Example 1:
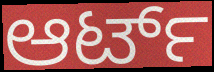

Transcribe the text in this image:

ಆರ್ಟ್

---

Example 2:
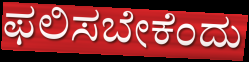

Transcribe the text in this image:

ಫಲಿಸಬೇಕೆಂದು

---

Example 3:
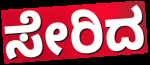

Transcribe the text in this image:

ಸೇರಿದ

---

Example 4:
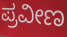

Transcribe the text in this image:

ಪ್ರವೀಣ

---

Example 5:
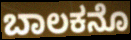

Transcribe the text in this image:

ಬಾಲಕನೊ